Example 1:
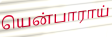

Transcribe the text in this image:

யென்பாராய்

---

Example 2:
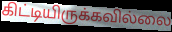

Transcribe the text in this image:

கிட்டியிருக்கவில்லை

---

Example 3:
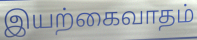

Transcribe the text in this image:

இயற்கைவாதம்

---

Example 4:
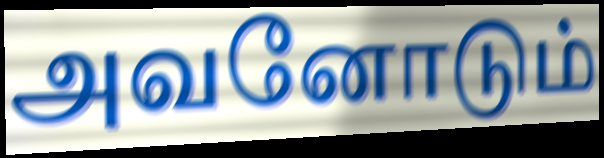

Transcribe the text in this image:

அவனோடும்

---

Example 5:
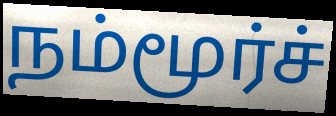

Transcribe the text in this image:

நம்மூர்ச்